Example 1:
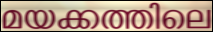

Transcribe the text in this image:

മയക്കത്തിലെ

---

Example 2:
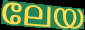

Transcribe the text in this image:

ലേയ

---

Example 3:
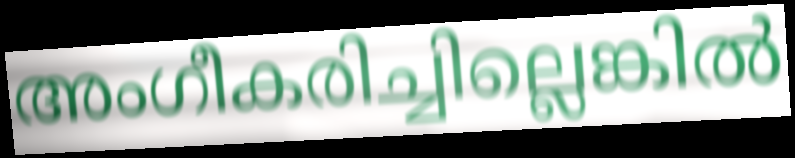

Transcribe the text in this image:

അംഗീകരിച്ചില്ലെങ്കിൽ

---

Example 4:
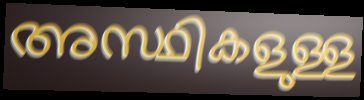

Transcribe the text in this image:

അസ്ഥികളുള്ള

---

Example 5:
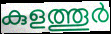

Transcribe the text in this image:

കുളത്തൂർ